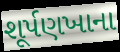
શૂર્પણખાના